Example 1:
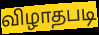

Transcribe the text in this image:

விழாதபடி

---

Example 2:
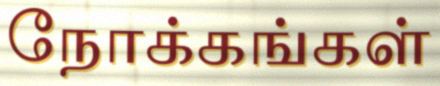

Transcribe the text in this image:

நோக்கங்கள்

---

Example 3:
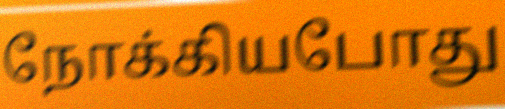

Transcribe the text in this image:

நோக்கியபோது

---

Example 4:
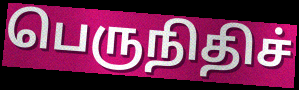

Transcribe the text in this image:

பெருநிதிச்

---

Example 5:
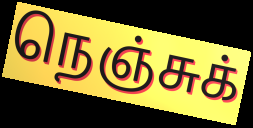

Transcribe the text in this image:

நெஞ்சுக்